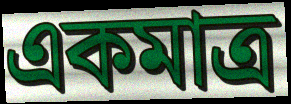
একমাত্ৰ